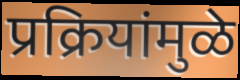
प्रक्रियांमुळे